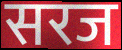
सरज